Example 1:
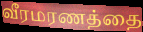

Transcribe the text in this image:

வீரமரணத்தை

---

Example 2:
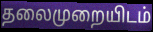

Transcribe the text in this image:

தலைமுறையிடம்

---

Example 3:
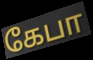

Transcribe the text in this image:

கேபா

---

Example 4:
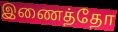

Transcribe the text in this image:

இணைத்தோ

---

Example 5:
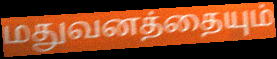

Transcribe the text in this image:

மதுவனத்தையும்